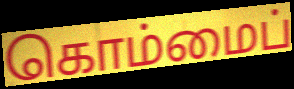
கொம்மைப்